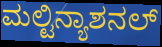
ಮಲ್ಟಿನ್ಯಾಶನಲ್